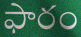
ఫారం